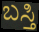
ಬಸ್ತಿ